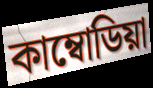
কাম্বোডিয়া